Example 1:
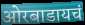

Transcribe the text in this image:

ओरबाडायचं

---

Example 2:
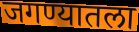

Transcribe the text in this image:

जगण्यातला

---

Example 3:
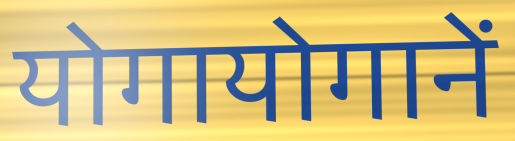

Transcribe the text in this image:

योगायोगानें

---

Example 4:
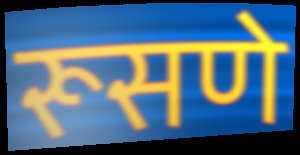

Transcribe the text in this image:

रूसणे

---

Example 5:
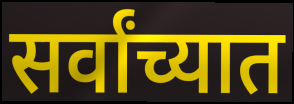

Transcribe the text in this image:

सर्वांच्यात